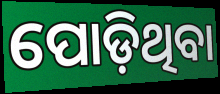
ପୋଡ଼ିଥିବା